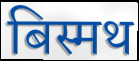
बिस्मथ